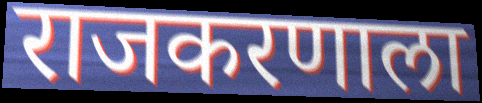
राजकरणाला